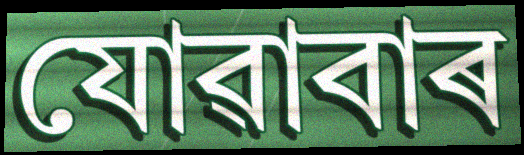
যোৱাবাৰ